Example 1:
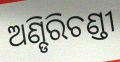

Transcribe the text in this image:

ଅଣ୍ଡିରିଚଣ୍ଡୀ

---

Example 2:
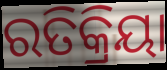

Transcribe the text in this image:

ରତିକ୍ରିୟା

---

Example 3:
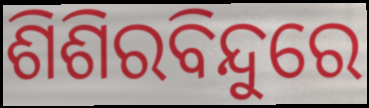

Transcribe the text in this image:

ଶିଶିରବିନ୍ଦୁରେ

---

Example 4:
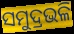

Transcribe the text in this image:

ସମୁଦ୍ରଭଳି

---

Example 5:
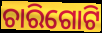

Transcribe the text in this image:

ଚାରିଗୋଟି